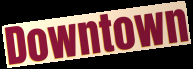
Downtown